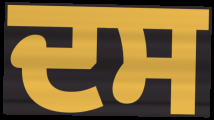
ਦਸ